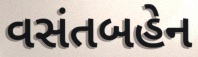
વસંતબહેન